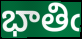
భాతిఁ